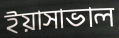
ইয়াসাভাল